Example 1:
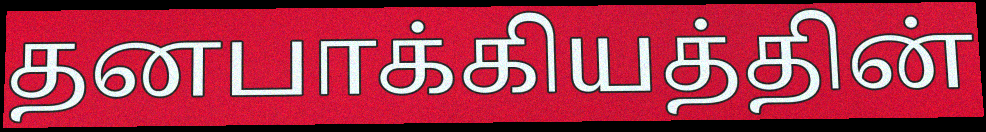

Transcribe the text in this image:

தனபாக்கியத்தின்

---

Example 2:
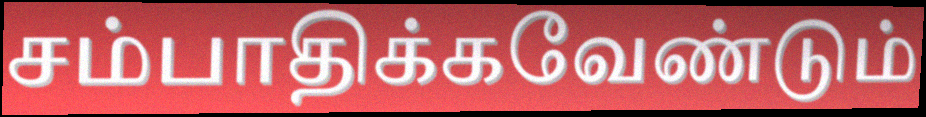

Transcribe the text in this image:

சம்பாதிக்கவேண்டும்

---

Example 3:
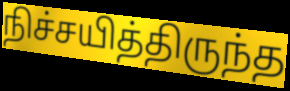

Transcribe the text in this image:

நிச்சயித்திருந்த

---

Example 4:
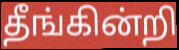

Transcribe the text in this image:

தீங்கின்றி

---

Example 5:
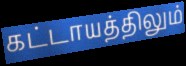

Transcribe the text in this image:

கட்டாயத்திலும்